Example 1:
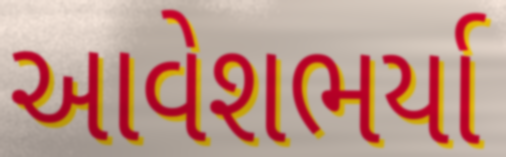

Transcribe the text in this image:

આવેશભર્યા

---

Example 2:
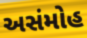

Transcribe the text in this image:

અસંમોહ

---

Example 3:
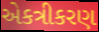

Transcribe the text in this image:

એકત્રીકરણ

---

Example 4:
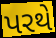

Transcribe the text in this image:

પરથે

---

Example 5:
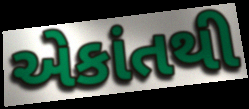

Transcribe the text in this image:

એકાંતથી